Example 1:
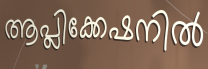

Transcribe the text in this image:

ആപ്ലിക്കേഷനിൽ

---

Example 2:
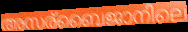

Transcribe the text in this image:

അസര്ബൈജാനിലെ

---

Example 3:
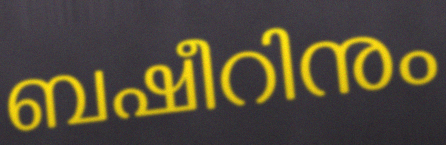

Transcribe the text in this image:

ബഷീറിനും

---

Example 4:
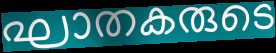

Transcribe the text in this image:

ഘാതകരുടെ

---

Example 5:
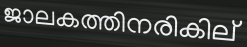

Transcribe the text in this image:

ജാലകത്തിനരികില്